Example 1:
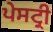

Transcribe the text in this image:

ਪੇਸਟ੍ਰੀ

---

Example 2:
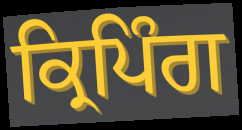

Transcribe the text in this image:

ਕ੍ਰਿਪਿੰਗ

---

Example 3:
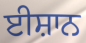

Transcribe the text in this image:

ਈਸ਼ਾਨ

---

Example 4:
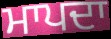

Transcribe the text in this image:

ਮਾਪਦਾ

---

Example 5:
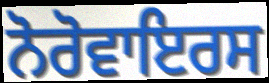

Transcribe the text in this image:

ਨੋਰੋਵਾਇਰਸ